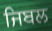
ਜਿਬਲ